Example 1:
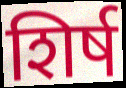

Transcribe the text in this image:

शिर्ष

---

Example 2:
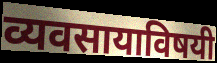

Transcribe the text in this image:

व्यवसायाविषयी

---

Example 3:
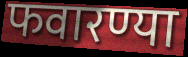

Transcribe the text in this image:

फवारण्या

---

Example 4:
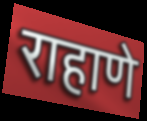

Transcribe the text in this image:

राहाणे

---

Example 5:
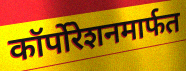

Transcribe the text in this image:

कॉर्पोरेशनमार्फत